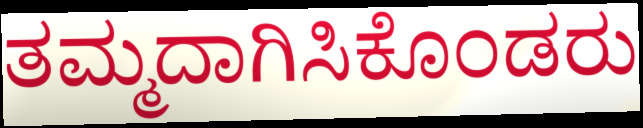
ತಮ್ಮದಾಗಿಸಿಕೊಂಡರು